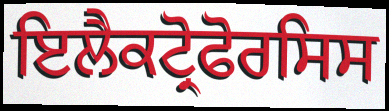
ਇਲੈਕਟ੍ਰੋਫੋਰਸਿਸ